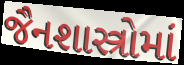
જૈનશાસ્ત્રોમાં